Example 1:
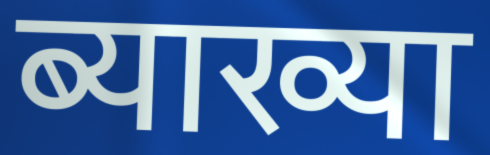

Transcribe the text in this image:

ब्याख्या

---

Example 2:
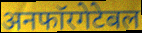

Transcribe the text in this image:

अनफॉरगेटेबल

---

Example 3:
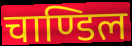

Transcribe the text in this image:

चाण्डिल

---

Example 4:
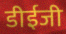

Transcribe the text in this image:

डीईजी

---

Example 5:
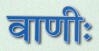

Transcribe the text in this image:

वाणीः